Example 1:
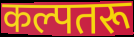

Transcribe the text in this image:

कल्पतरू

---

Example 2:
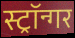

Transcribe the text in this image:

स्ट्रॉन्गर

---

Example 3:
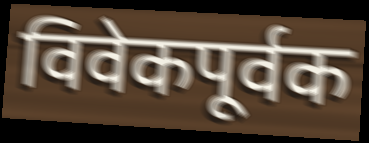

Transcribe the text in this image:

विवेकपूर्वक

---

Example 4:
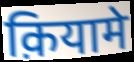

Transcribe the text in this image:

क़ियामे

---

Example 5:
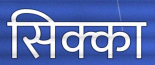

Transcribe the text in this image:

सिक्का